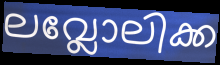
ലവ്ലോലിക്ക